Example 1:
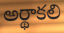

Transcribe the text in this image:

అర్థాకలి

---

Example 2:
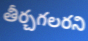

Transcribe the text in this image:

తీర్చగలరని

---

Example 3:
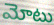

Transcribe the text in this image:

మోటు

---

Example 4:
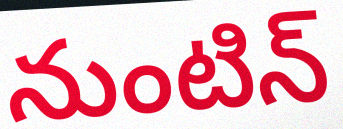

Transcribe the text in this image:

నుంటిన్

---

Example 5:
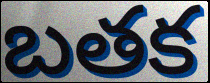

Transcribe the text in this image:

బతక